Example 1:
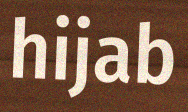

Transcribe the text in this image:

hijab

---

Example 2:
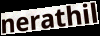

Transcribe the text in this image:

nerathil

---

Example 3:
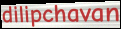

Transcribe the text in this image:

dilipchavan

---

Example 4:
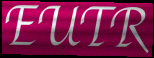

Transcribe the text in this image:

EUTR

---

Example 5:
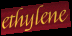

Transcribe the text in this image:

ethylene